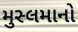
મુસ્લમાનો